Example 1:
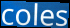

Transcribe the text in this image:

coles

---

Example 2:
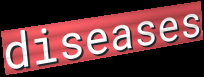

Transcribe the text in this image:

diseases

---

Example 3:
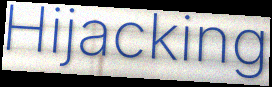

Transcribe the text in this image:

Hijacking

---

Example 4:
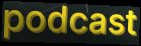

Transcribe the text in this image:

podcast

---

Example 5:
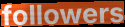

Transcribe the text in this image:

followers